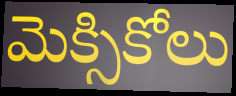
మెక్సికోలు